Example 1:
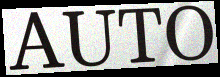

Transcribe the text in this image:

AUTO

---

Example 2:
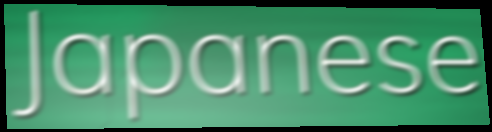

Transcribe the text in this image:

Japanese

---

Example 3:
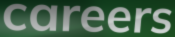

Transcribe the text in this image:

careers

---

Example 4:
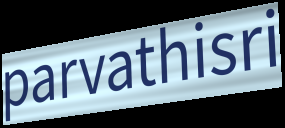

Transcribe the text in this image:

parvathisri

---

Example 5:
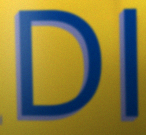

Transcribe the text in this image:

DI